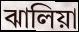
ঝালিয়া